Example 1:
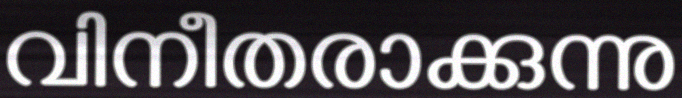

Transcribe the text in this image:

വിനീതരാക്കുന്നു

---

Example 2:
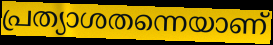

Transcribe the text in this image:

പ്രത്യാശതന്നെയാണ്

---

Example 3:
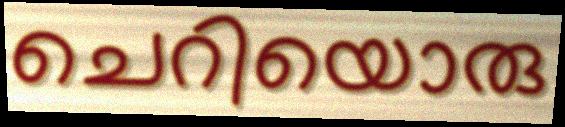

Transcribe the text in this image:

ചെറിയൊരു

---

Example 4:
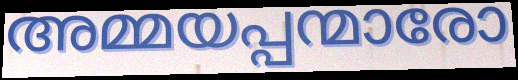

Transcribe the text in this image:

അമ്മയപ്പന്മാരോ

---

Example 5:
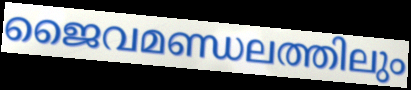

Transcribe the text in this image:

ജൈവമണ്ഡലത്തിലും